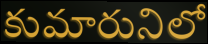
కుమారునిలో